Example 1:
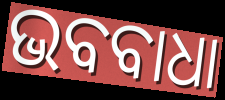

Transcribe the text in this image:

ଭବବାଧା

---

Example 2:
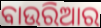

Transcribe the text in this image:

ବାଉରିଆର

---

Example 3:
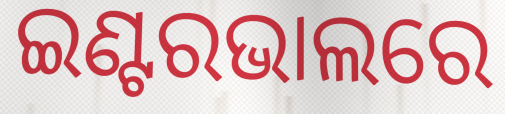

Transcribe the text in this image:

ଇଣ୍ଟରଭାଲରେ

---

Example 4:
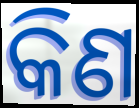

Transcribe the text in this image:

କିଣ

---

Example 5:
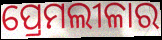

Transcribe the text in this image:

ପ୍ରେମଲୀଳାର